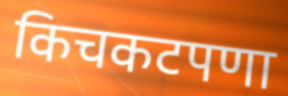
किचकटपणा